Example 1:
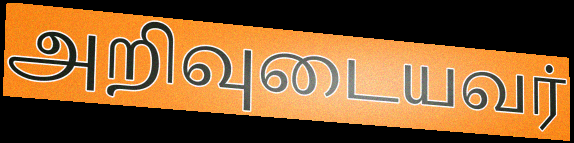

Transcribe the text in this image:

அறிவுடையவர்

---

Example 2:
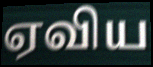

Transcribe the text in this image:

ஏவிய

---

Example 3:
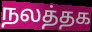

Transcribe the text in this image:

நலத்தக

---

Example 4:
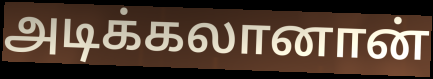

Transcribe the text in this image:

அடிக்கலானான்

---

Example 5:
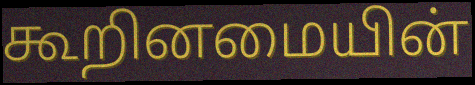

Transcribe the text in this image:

கூறினமையின்